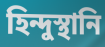
হিন্দুস্থানি